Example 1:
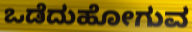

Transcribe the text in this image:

ಒಡೆದುಹೋಗುವ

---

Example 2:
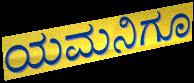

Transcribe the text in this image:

ಯಮನಿಗೂ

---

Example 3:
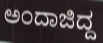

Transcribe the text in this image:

ಅಂದಾಜಿದ್ದ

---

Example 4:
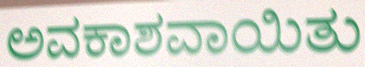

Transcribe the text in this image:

ಅವಕಾಶವಾಯಿತು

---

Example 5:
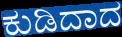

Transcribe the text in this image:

ಕುಡಿದಾದ